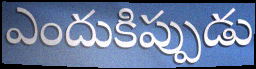
ఎందుకిప్పుడు